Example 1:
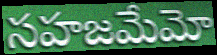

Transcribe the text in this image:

సహజమేమో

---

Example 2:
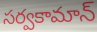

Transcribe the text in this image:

సర్వకామాన్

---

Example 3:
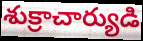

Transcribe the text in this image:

శుక్రాచార్యుడి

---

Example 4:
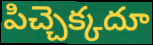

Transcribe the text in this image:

పిచ్చెక్కదూ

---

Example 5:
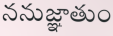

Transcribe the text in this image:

ననుజ్ఞాతుం